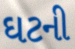
ઘટની